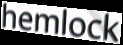
hemlock